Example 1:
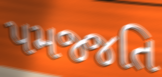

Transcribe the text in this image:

પમજ્જતિ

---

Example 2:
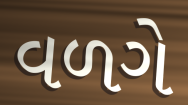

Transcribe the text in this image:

વળગે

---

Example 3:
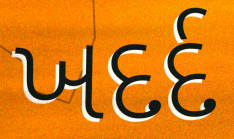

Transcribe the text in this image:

ખદર્દ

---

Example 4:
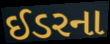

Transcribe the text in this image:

ઈડરના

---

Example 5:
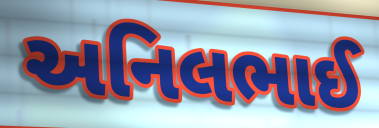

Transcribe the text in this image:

અનિલભાઈ